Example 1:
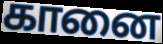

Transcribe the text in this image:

கானை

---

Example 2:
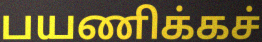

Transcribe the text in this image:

பயணிக்கச்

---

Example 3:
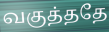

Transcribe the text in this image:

வகுத்ததே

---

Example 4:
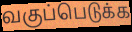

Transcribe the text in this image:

வகுப்பெடுக்க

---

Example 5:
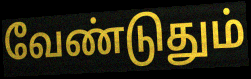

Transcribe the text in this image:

வேண்டுதும்